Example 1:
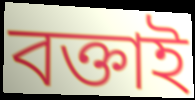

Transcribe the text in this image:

বক্তাই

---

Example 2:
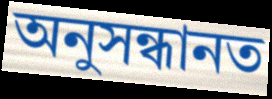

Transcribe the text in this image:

অনুসন্ধানত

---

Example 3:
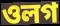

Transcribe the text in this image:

ওলগ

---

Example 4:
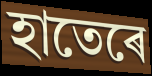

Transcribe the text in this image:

হাতেৰে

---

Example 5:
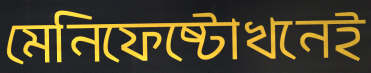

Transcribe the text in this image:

মেনিফেষ্টোখনেই